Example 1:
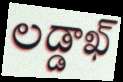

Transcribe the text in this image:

లడ్డాఖ్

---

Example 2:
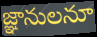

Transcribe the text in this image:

జ్ఞానులనూ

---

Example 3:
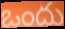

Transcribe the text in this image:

ఒందు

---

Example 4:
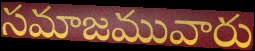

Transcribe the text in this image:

సమాజమువారు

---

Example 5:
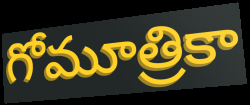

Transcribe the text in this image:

గోమూత్రికా